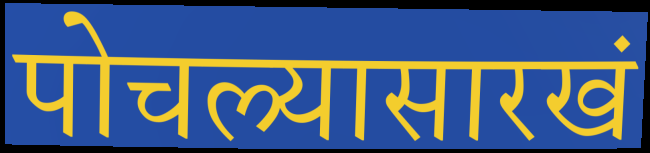
पोचल्यासारखं